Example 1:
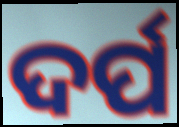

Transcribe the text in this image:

ଦର୍ପ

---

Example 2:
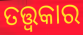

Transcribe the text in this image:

ତତ୍ତ୍ୱକାର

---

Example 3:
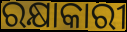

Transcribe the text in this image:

ରକ୍ଷାକାରୀ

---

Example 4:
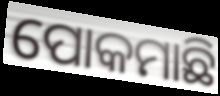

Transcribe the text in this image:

ପୋକମାଛି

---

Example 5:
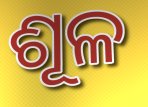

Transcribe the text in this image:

ଶୂଳ